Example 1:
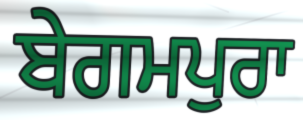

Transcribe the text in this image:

ਬੇਗਮਪੁਰਾ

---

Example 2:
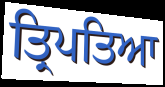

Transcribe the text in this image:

ਤ੍ਰਿਪਤਿਆ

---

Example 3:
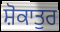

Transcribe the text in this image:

ਸ਼ੋਕਾਤੁਰ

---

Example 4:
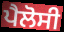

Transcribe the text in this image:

ਪੈਲੋਸੀ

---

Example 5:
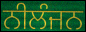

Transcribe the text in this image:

ਨੀਲੰਜਨ